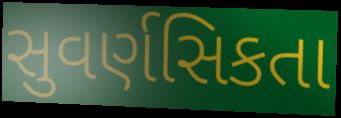
સુવર્ણસિકતા